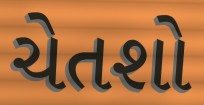
ચેતશો